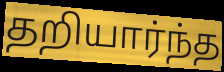
தறியார்ந்த